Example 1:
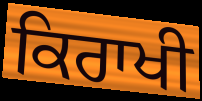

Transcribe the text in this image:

ਕਿਰਾਖੀ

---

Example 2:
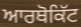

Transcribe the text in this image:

ਆਰਥੋਕਿੱਟ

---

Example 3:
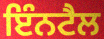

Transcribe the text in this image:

ਇੰਨਟੈਲ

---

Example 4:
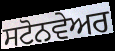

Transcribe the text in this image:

ਸਟੋਨਵੇਅਰ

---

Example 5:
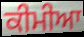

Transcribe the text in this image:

ਕੀਮੀਆ